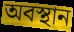
অবস্থান